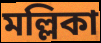
মল্লিকা